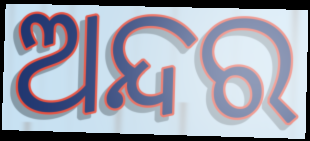
ଅନ୍ଦର